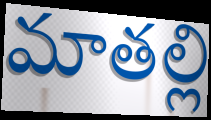
మాతల్లి